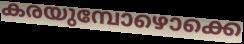
കരയുമ്പോഴൊക്കെ